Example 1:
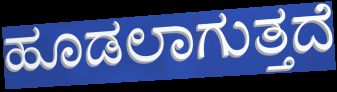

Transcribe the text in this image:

ಹೂಡಲಾಗುತ್ತದೆ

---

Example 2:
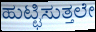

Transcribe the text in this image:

ಹುಟ್ಟಿಸುತ್ತಲೇ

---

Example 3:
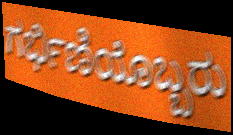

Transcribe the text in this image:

ಗರ್ಭಿಣಿಯೊಬ್ಬರು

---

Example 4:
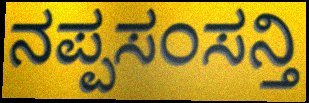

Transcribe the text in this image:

ನಪ್ಪಸಂಸನ್ತಿ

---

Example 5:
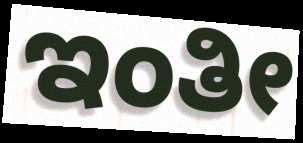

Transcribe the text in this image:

ಇಂತೀ